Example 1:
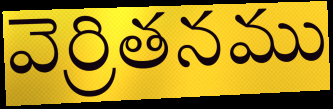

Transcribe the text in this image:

వెర్రితనము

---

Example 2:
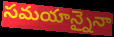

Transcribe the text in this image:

సమయాన్నైనా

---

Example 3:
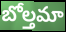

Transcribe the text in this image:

బోల్తమా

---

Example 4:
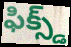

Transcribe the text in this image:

ఫిక్స్డ్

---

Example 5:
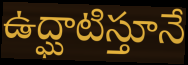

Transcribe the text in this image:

ఉద్ఘాటిస్తూనే